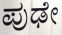
ಪುಢೇ